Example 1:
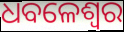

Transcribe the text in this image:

ଧବଳେଶ୍ଵର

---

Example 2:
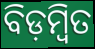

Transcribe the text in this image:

ବିଡ଼ମ୍ବିତ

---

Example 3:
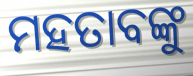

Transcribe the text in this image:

ମହତାବଙ୍କୁ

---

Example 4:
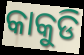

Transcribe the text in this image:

କାକୁଡି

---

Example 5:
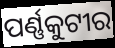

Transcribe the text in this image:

ପର୍ଣ୍ଣକୁଟୀର